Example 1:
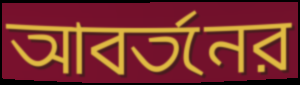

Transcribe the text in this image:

আবর্তনের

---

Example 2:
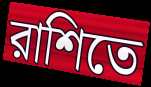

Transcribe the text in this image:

রাশিতে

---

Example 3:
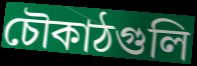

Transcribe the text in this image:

চৌকাঠগুলি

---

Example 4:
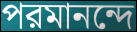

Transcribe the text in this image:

পরমানন্দে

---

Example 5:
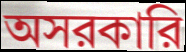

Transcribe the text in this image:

অসরকারি